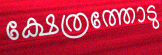
ക്ഷേത്രത്തോടു